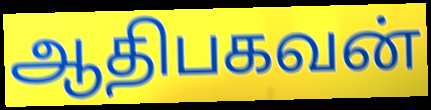
ஆதிபகவன்